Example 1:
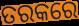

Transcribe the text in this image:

ତରକରେ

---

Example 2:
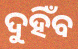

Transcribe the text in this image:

ଦୁହିଁବ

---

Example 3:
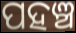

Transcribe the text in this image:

ପହଞ୍ଚ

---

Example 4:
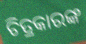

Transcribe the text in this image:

ଚିତ୍ରକାରଙ୍କ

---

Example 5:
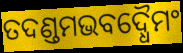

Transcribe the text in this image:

ତଦଣ୍ଡମଭବଦ୍ଧୈମଂ